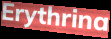
Erythrina